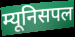
म्यूनिसपल